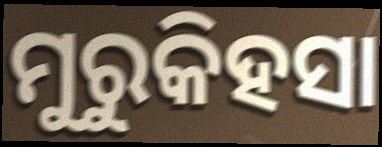
ମୁରୁକିହସା